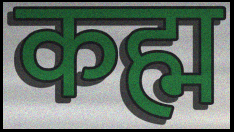
कह्म